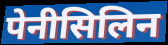
पेनीसिलिन